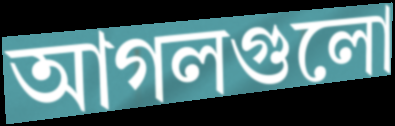
আগলগুলো